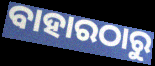
ବାହାରଠାରୁ